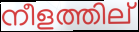
നീളത്തില്